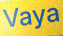
Vaya